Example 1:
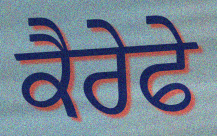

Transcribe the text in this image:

ਕੈਰੇਫੇ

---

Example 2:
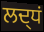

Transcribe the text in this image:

ਲਦ੍ਧਂ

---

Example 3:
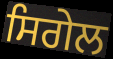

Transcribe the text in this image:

ਸਿਗੇਲ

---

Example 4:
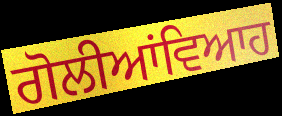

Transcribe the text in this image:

ਗੋਲੀਆਂਵਿਆਹ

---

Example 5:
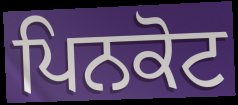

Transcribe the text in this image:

ਪਿਨਕੋਟ